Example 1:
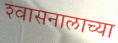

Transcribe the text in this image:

श्वासनालाच्या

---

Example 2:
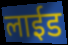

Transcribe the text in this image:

लाईड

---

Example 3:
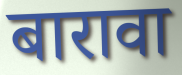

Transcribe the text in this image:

बारावा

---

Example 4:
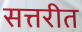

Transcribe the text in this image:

सत्तरीत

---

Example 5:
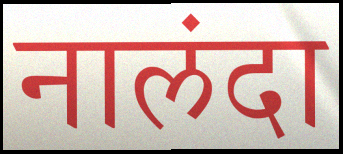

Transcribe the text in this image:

नालंदा